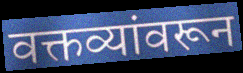
वक्तव्यांवरून